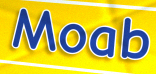
Moab